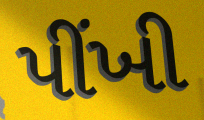
પીંખી